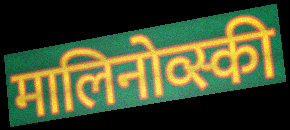
मालिनोव्स्की